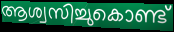
ആശ്വസിച്ചുകൊണ്ട്